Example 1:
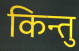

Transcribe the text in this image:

किन्तु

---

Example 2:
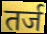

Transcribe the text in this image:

तर्ज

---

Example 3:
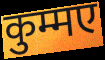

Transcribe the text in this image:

कुम्मए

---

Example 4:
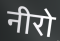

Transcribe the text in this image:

नीरो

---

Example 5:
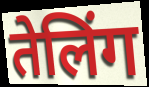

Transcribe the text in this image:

तेलिंग